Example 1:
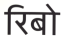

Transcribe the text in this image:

रिबो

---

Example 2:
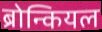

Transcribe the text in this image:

ब्रोन्कियल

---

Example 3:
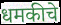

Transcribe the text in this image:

धमकीचे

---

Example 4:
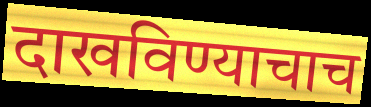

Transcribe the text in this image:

दाखविण्याचाच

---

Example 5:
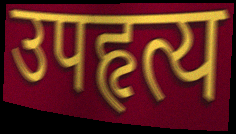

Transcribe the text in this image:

उपहृत्य